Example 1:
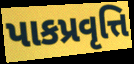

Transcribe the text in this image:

પાકપ્રવૃત્તિ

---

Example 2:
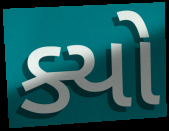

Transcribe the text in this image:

ક્યો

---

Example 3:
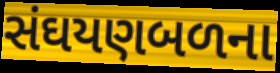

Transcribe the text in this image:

સંઘયણબળના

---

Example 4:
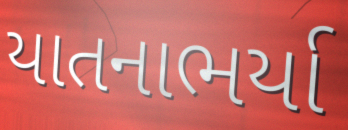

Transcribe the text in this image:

યાતનાભર્યા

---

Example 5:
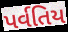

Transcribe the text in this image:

પર્વતિય